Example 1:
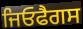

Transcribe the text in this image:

ਜਿਓਫੈਗਸ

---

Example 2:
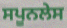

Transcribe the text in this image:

ਸਪੂਨਲੇਸ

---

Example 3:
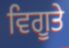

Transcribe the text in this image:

ਵਿਗੂਤੇ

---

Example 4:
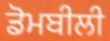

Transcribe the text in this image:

ਡੋਮਬੀਲੀ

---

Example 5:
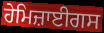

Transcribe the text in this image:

ਹੇਮਿਜ਼ਾਈਗਸ